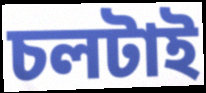
চলটাই